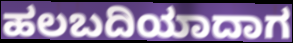
ಹಲಬದಿಯಾದಾಗ